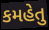
કમહેતુ